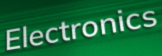
Electronics